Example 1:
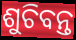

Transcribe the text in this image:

ଶୁଚିବନ୍ତ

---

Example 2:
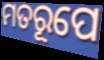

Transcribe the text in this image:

ମତରୂପେ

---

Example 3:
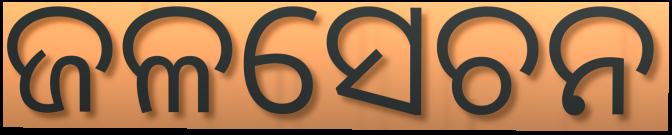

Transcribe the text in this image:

ଜଳସେଚନ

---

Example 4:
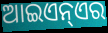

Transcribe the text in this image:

ଆଇଏନ୍ଏର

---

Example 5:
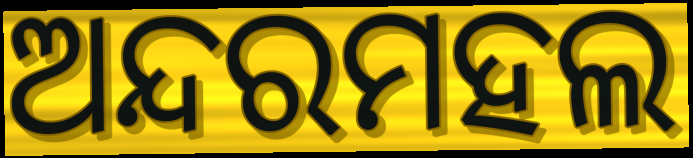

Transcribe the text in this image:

ଅନ୍ଦରମହଲ